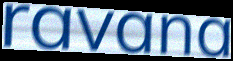
ravana